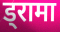
ड्रामा